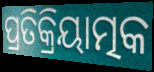
ପ୍ରତିକ୍ରିୟାତ୍ମକ